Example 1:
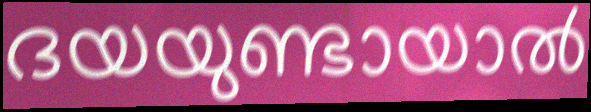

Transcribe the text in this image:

ദയയുണ്ടായാൽ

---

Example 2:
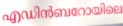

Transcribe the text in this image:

എഡിൻബറോയിലെ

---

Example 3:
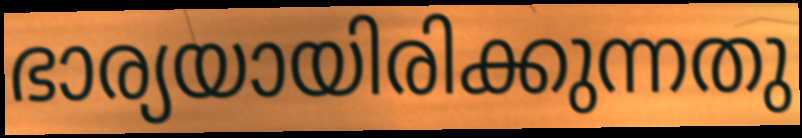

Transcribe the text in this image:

ഭാര്യയായിരിക്കുന്നതു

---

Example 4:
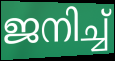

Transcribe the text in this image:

ജനിച്ച്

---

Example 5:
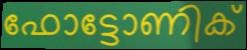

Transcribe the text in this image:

ഫോട്ടോണിക്